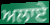
ਅਲਾਏ